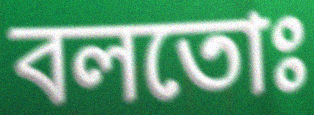
বলতোঃ